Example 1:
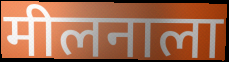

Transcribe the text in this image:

मीलनाला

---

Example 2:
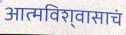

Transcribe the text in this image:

आत्मविश्वासाचं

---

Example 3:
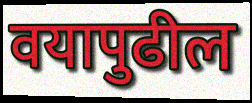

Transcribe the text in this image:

वयापुढील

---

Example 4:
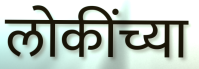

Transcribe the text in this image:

लोकींच्या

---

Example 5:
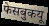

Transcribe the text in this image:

फेसबुकयू